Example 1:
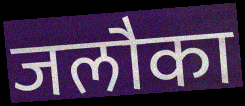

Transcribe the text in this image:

जलौका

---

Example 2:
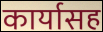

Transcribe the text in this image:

कार्यासह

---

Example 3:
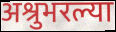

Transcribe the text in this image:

अश्रुभरल्या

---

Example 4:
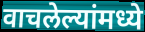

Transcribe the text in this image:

वाचलेल्यांमध्ये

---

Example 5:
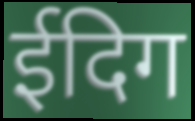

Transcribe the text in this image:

ईदिग